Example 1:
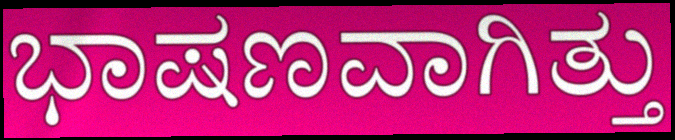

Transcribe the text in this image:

ಭಾಷಣವಾಗಿತ್ತು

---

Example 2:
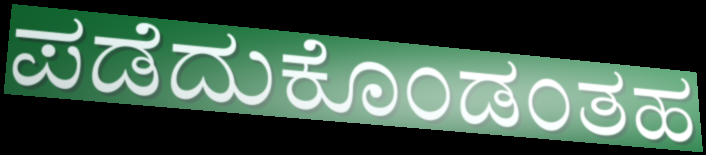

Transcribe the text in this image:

ಪಡೆದುಕೊಂಡಂತಹ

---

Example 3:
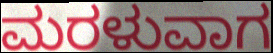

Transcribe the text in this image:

ಮರಳುವಾಗ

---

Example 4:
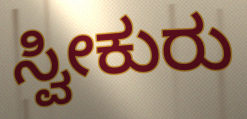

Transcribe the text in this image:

ಸ್ವೀಕುರು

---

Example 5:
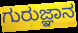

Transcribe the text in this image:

ಗುರುಜ್ಞಾನ